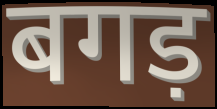
बगड़